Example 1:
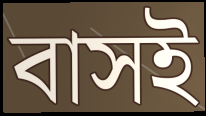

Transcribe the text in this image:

বাসই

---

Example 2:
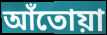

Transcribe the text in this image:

আঁতোয়া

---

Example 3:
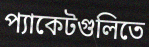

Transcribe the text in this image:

প্যাকেটগুলিতে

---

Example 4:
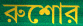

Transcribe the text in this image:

রুশোর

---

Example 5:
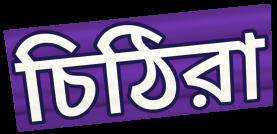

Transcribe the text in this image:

চিঠিরা